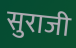
सुराजी